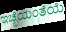
ಇಚ್ಛೆಯಂತೆಯೆ